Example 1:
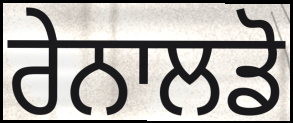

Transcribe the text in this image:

ਰੇਨਾਲਡੋ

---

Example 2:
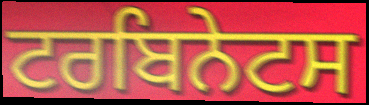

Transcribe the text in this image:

ਟਰਬਿਨੇਟਸ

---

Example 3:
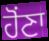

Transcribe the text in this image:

ਹੋਂਣਾ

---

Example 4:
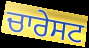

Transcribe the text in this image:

ਚਾਰੇਸਟ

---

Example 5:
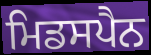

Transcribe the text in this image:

ਮਿਡਸਪੈਨ